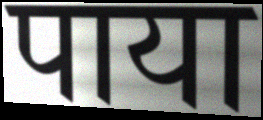
पाया